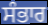
ਸੰਭਾਰ